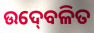
ଉଦ୍‍ବେଳିତ